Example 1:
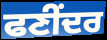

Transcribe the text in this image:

ਫਣੀਂਦਰ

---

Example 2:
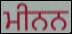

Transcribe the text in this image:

ਮੀਨਨ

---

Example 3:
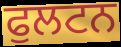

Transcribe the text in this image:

ਫੁਲਟਨ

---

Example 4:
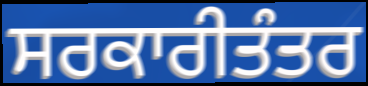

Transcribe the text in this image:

ਸਰਕਾਰੀਤੰਤਰ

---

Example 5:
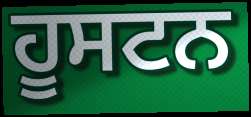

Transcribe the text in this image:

ਹੂਸਟਨ